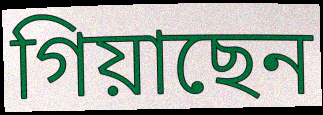
গিয়াছেন